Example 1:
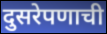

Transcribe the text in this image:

दुसरेपणाची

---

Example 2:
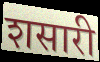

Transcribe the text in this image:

शसारी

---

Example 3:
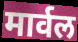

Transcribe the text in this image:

मार्वल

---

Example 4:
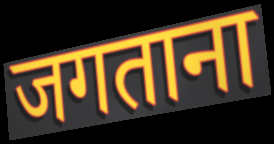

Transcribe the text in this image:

जगताना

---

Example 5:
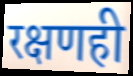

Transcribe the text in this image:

रक्षणही